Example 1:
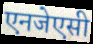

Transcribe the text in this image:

एनजेएसी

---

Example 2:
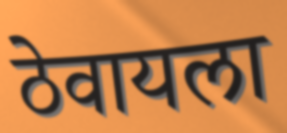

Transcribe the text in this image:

ठेवायला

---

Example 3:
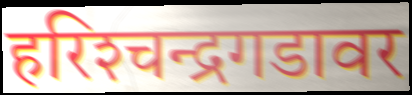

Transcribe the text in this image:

हरिश्चन्द्रगडावर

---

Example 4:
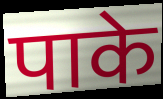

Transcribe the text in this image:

पाके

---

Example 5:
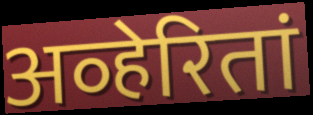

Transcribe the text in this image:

अव्हेरितां